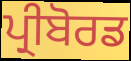
ਪ੍ਰੀਬੋਰਡ